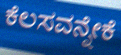
ಕೆಲಸವನ್ನೇಕೆ